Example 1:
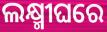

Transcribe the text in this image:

ଲକ୍ଷ୍ମୀଘରେ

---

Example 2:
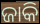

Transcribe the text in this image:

ଜାକି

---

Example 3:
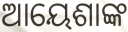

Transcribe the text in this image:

ଆୟେଶାଙ୍କ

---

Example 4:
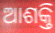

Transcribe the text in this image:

ଆଶକ୍ତି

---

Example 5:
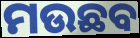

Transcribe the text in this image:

ମଉଛବ